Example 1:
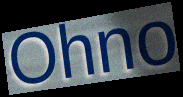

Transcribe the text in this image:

Ohno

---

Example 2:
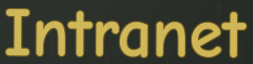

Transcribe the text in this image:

Intranet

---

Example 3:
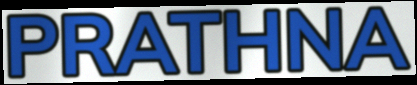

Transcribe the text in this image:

PRATHNA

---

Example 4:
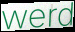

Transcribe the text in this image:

werd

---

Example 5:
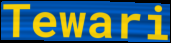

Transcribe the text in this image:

Tewari